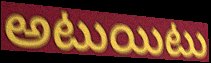
అటుయిటు